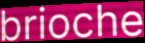
brioche